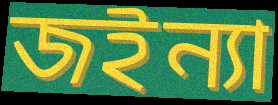
জইন্যা